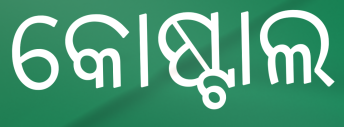
କୋଷ୍ଟାଲ